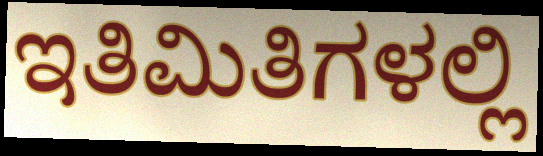
ಇತಿಮಿತಿಗಳಲ್ಲಿ